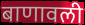
बाणावली